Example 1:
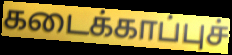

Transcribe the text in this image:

கடைக்காப்புச்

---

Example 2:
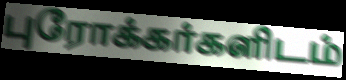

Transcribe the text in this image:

புரோக்கர்களிடம்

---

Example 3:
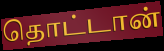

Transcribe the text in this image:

தொட்டான்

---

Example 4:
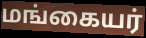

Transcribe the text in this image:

மங்கையர்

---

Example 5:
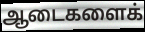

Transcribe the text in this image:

ஆடைகளைக்